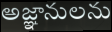
అజ్ఞానులను